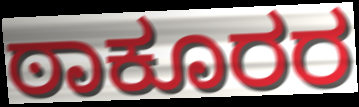
ಠಾಕೂರರ